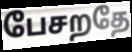
பேசறதே